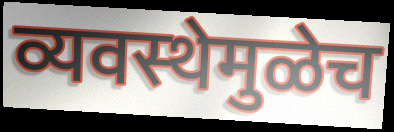
व्यवस्थेमुळेच